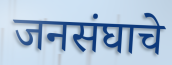
जनसंघाचे